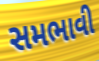
સમભાવી